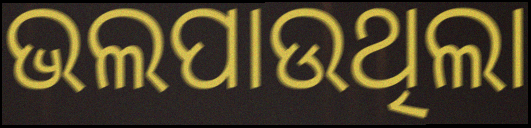
ଭଲପାଉଥିଲା